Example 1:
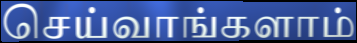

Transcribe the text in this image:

செய்வாங்களாம்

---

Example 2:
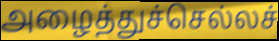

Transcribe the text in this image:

அழைத்துச்செல்லச்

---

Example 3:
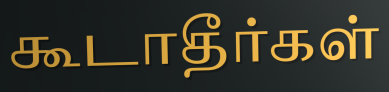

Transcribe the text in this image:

கூடாதீர்கள்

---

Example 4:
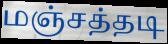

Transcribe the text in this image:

மஞ்சத்தடி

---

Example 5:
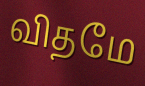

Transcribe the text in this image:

விதமே